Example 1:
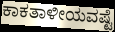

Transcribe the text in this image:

ಕಾಕತಾಳೀಯವಷ್ಟೆ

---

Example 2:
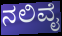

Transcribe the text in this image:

ನಲಿವೈ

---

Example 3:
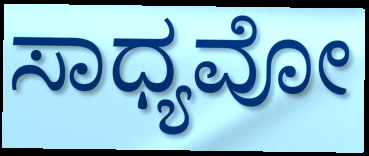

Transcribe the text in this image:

ಸಾಧ್ಯವೋ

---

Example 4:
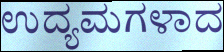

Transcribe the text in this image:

ಉದ್ಯಮಗಳಾದ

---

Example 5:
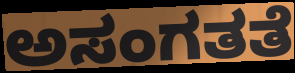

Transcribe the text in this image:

ಅಸಂಗತತೆ